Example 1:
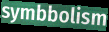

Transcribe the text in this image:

symbbolism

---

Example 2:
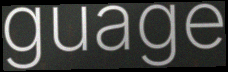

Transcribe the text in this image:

guage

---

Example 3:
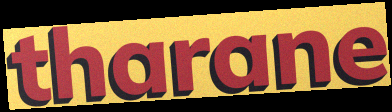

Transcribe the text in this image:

tharane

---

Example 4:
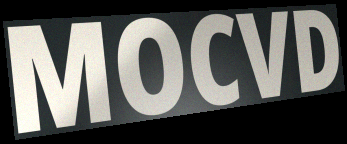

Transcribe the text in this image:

MOCVD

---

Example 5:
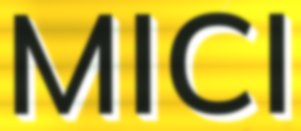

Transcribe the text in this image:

MICI